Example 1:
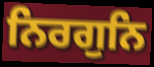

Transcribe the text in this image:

ਨਿਰਗੁਨਿ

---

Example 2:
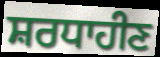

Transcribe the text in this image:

ਸ਼ਰਧਾਹੀਣ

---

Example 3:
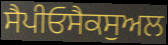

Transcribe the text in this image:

ਸੈਪੀਓਸੈਕਸੁਅਲ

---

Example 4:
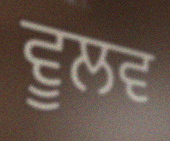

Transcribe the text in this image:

ਵੂਲਵ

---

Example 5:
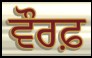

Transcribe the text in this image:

ਵੌਰਫ਼